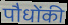
पौधोंकी